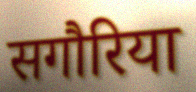
सगौरिया